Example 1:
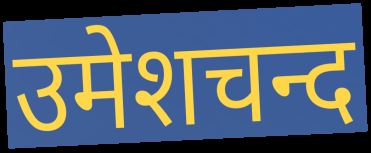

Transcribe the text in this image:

उमेशचन्द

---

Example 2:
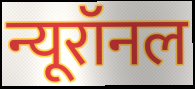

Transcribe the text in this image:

न्यूरॉनल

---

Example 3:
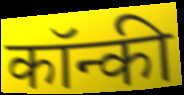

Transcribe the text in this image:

कॉन्की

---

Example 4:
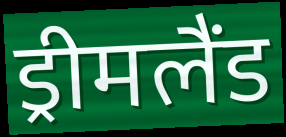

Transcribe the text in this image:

ड्रीमलैंड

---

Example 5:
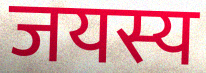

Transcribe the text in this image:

जयस्य